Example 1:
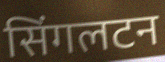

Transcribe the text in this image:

सिंगलटन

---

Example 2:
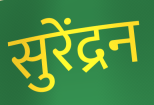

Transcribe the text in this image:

सुरेंद्रन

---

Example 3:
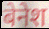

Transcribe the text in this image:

बेनेश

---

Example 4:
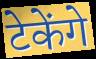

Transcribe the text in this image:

टेकेंगे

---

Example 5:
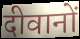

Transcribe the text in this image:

दीवानों